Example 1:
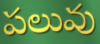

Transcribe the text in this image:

పలువు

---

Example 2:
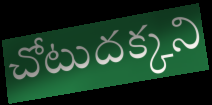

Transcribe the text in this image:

చోటుదక్కని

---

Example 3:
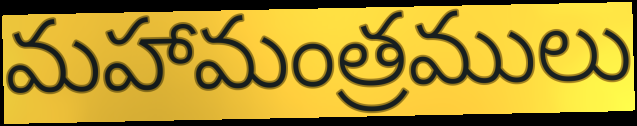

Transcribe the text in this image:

మహామంత్రములు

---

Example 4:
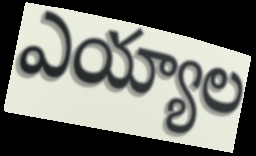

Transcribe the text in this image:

ఎయ్యాల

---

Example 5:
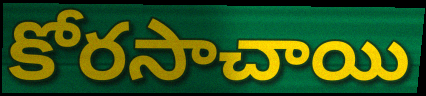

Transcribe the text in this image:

కోరసాచాయి